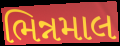
ભિન્નમાલ